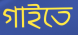
গাইতে